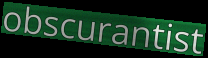
obscurantist